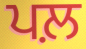
ਪਲ਼